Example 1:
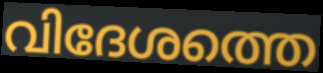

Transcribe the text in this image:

വിദേശത്തെ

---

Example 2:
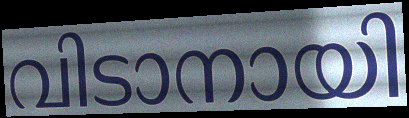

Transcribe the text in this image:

വിടാനായി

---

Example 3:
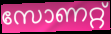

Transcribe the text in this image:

സോണറ്റ്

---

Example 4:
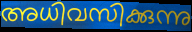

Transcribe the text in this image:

അധിവസിക്കുന്നു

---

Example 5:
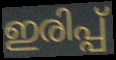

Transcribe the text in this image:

ഇരിപ്പ്